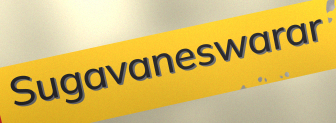
Sugavaneswarar